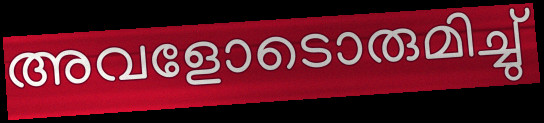
അവളോടൊരുമിച്ചു്